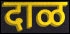
दाळ